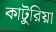
কাটুরিয়া